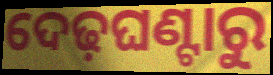
ଦେଢ଼ଘଣ୍ଟାରୁ